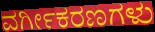
ವರ್ಗೀಕರಣಗಳು